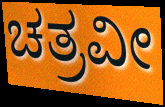
ಚತ್ರವೀ